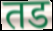
तड